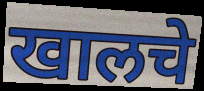
खालचे